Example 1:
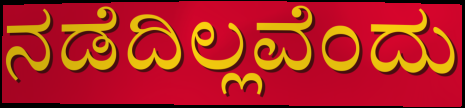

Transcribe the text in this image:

ನಡೆದಿಲ್ಲವೆಂದು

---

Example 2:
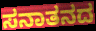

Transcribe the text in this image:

ಸನಾತನದ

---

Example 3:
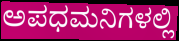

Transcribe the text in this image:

ಅಪಧಮನಿಗಳಲ್ಲಿ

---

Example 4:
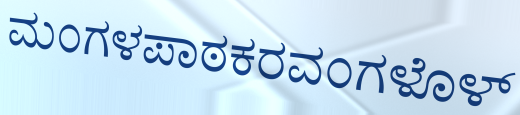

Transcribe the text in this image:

ಮಂಗಳಪಾಠಕರವಂಗಳೊಳ್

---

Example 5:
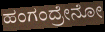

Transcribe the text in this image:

ಹಂಗಂದ್ರೇನೋ